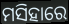
ମସିହାରେ